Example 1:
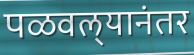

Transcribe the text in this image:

पळवल्यानंतर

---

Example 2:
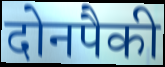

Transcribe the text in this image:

दोनपैकी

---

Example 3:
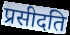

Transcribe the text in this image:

प्रसीदति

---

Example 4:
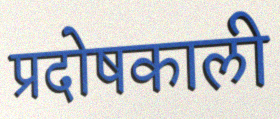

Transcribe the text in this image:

प्रदोषकाली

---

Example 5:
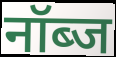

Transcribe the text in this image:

नॉब्ज